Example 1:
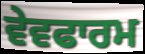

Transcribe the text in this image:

ਵੇਵਫਾਰਮ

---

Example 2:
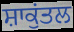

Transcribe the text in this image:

ਸ਼ਾਕੁਂਤਲ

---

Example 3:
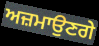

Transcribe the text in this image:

ਅਜ਼ਮਾਉਣਗੇ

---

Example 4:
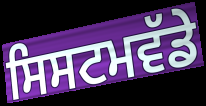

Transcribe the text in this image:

ਸਿਸਟਮਵੱਡੇ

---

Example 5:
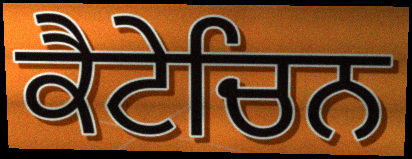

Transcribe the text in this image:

ਕੈਟੇਚਿਨ